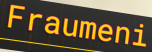
Fraumeni